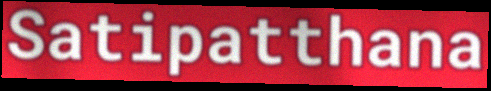
Satipatthana